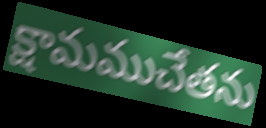
క్షామముచేతను